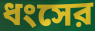
ধংসের